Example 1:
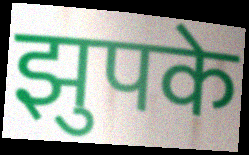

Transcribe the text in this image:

झुपके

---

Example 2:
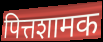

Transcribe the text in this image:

पित्तशामक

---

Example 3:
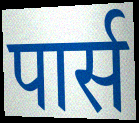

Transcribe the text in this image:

पार्स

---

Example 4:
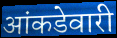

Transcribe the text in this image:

आंकडेवारी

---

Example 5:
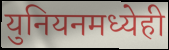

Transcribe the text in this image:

युनियनमध्येही